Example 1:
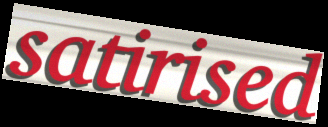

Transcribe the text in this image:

satirised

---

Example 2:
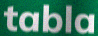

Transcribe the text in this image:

tabla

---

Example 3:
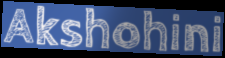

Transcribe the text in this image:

Akshohini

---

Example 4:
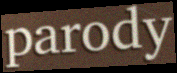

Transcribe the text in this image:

parody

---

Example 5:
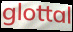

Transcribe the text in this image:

glottal